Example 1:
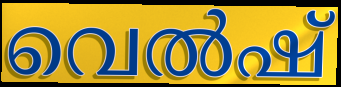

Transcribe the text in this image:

വെൽഷ്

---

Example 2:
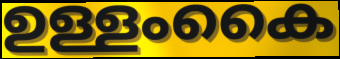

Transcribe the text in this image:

ഉള്ളംകൈ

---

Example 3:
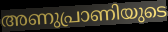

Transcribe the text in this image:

അണുപ്രാണിയുടെ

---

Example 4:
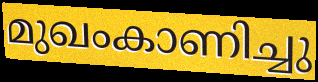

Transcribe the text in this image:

മുഖംകാണിച്ചു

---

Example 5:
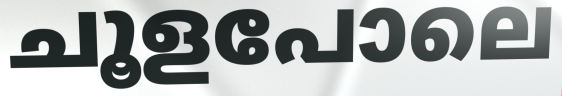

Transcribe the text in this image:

ചൂളപോലെ